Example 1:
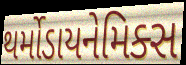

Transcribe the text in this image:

થર્મોડાયનેમિક્સ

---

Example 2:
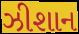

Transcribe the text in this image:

ઝીશાન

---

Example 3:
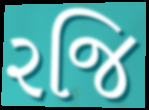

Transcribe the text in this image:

રજિ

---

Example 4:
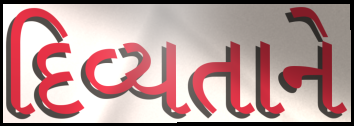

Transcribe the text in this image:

દિવ્યતાને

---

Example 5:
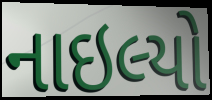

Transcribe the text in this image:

નાઇલ્યો